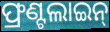
ଫ୍ରଣ୍ଟଲାଇନ୍